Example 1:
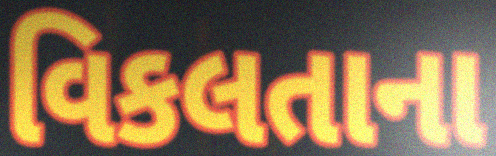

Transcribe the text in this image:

વિકલતાના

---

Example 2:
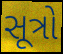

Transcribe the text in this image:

સૂત્રો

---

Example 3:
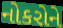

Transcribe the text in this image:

નોકરોને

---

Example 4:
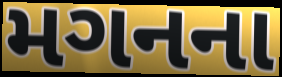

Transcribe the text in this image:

મગનના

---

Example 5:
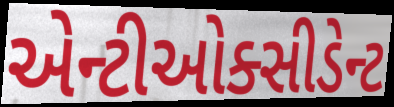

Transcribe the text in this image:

એન્ટીઓક્સીડેન્ટ